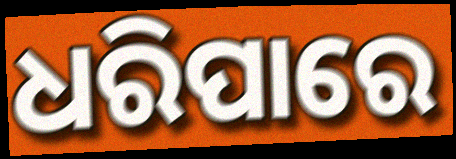
ଧରିପାରେ